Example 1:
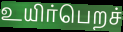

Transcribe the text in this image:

உயிர்பெறச்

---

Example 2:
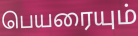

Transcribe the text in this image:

பெயரையும்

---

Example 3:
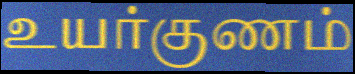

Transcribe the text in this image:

உயர்குணம்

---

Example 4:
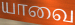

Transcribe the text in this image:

யாவை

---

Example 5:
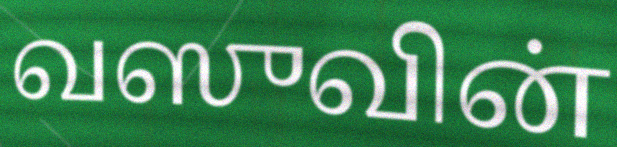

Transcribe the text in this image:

வஸுவின்